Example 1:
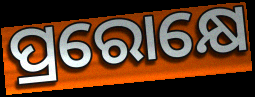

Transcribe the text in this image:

ପ୍ରରୋକ୍ଷେ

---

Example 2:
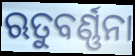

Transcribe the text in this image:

ଋତୁବର୍ଣ୍ଣନା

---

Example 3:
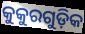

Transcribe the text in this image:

କୁକୁରଗୁଡ଼ିକ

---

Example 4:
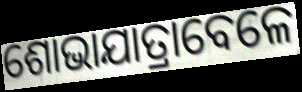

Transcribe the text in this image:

ଶୋଭାଯାତ୍ରାବେଳେ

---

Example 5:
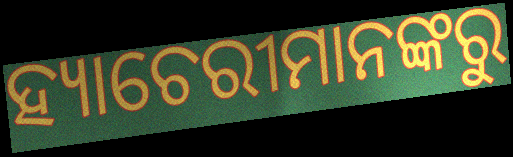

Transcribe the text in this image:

ହ୍ୟାଚେରୀମାନଙ୍କରୁ